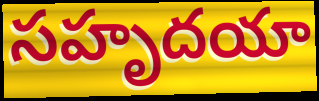
సహృదయా